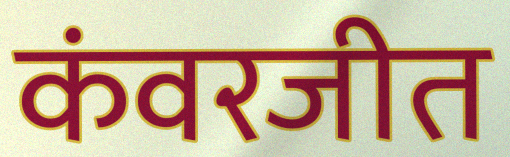
कंवरजीत